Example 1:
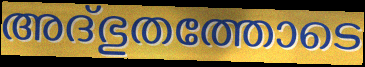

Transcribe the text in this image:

അദ്ഭുതത്തോടെ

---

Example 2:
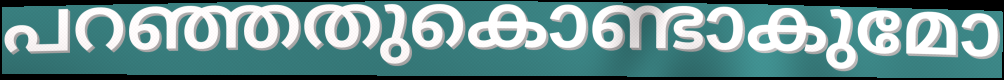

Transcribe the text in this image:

പറഞ്ഞതുകൊണ്ടാകുമോ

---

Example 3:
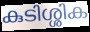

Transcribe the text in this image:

കുടിശ്ശിക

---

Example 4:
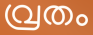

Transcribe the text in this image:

വ്രതം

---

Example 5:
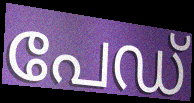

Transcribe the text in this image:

പേഡ്